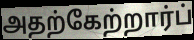
அதற்கேற்றார்ப்